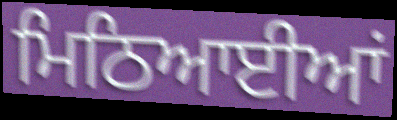
ਮਿਠਿਆਈਆਂ